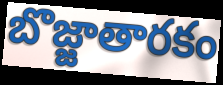
బొజ్జాతారకం